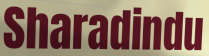
Sharadindu